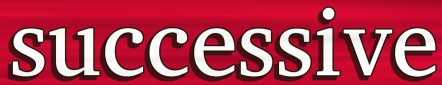
successive